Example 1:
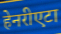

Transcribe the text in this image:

हेनरीएटा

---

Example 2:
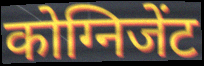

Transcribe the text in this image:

कोग्निजेंट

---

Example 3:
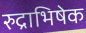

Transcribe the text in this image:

रुद्राभिषेक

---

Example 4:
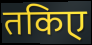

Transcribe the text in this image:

तकिए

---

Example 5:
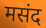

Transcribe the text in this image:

मसंद